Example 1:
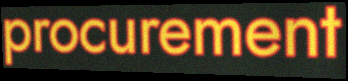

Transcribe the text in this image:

procurement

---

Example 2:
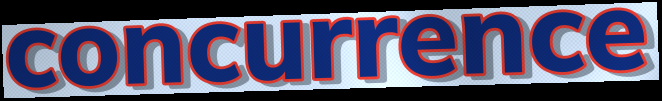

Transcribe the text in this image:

concurrence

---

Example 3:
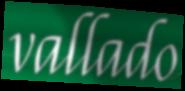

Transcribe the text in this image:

vallado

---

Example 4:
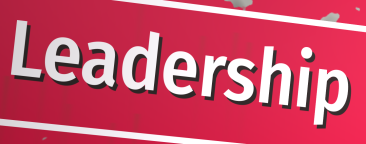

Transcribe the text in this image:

Leadership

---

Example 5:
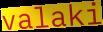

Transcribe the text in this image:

valaki